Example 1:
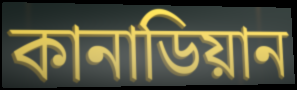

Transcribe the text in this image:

কানাডিয়ান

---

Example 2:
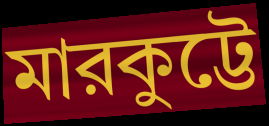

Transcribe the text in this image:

মারকুট্টে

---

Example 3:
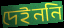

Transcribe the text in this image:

দেইননি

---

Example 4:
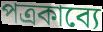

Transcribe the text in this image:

পত্রকাব্যে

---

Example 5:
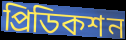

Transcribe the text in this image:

প্রিডিকশন